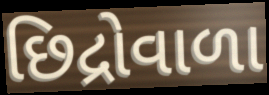
છિદ્રોવાળા